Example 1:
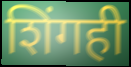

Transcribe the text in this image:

शिंगही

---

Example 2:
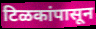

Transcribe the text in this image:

टिळकांपासून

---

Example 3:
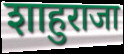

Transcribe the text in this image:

शाहुराजा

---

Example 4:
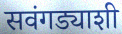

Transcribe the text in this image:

सवंगड्याशी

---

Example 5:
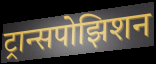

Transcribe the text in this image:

ट्रान्सपोझिशन